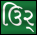
ઉિર્